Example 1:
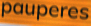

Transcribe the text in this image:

pauperes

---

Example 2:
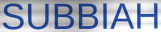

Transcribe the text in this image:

SUBBIAH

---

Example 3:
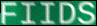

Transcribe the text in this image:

FIIDS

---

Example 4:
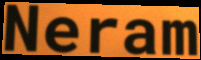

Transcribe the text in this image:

Neram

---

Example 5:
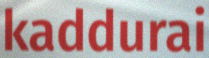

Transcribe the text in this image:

kaddurai